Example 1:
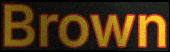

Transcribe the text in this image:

Brown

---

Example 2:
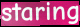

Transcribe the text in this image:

staring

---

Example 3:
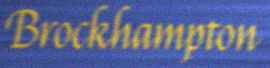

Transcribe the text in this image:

Brockhampton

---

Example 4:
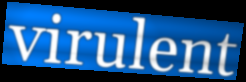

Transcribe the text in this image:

virulent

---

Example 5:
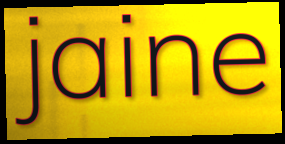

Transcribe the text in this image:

jaine